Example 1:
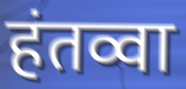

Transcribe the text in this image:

हंतव्वा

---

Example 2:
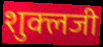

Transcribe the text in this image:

शुक्‍लजी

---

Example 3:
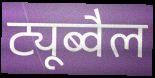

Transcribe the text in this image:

ट्यूब्वैल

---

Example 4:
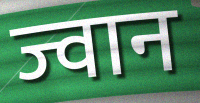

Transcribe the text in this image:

ज्वान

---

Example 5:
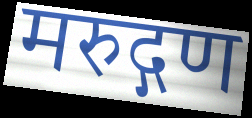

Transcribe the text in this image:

मरुद्गण